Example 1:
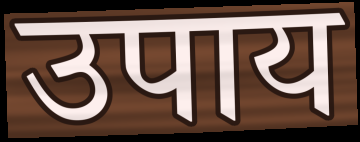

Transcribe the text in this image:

उपाय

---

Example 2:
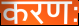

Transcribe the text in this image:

करणः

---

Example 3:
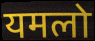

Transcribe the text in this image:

यमलो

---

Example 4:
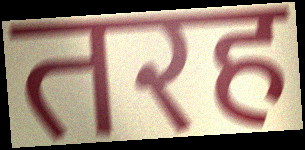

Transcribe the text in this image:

तरह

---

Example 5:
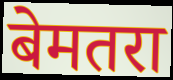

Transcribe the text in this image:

बेमतरा